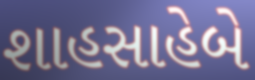
શાહસાહેબે